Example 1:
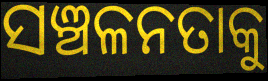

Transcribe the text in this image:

ସଞ୍ଚଳନତାକୁ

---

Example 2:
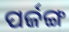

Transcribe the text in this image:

ପର୍ଜଙ୍ଗ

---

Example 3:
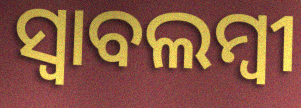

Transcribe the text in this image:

ସ୍ଵାବଲମ୍ଵୀ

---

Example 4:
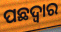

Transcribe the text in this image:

ପଛଦ୍ୱାର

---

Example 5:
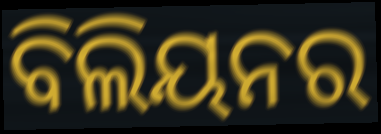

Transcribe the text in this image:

ବିଲିୟନର